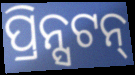
ପ୍ରିନ୍ସଟନ୍